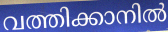
വത്തിക്കാനിൽ